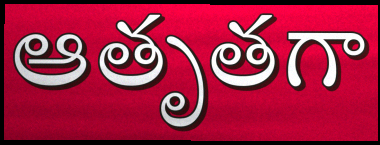
ఆతృతగా